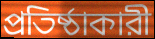
প্রতিষ্ঠাকারী